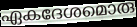
ഏകദേശമൊരു